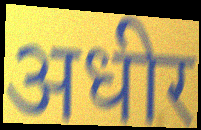
अधीर